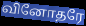
வினோதரே